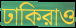
ঢাকিরাও